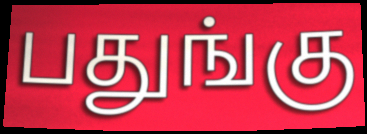
பதுங்கு